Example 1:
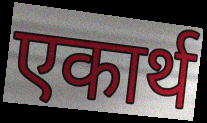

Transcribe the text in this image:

एकार्थ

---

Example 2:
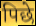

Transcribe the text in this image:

पिछे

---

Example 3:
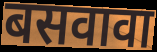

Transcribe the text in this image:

बसवावा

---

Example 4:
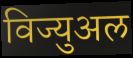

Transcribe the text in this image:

विज्युअल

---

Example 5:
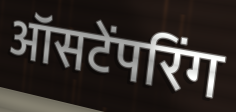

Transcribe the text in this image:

ऑसटेंपरिंग